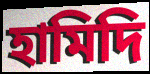
হামিদি